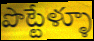
పొట్టేళ్ళూ